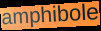
amphibole